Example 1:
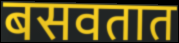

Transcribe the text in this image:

बसवतात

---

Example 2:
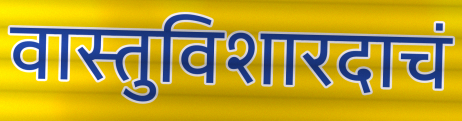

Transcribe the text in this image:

वास्तुविशारदाचं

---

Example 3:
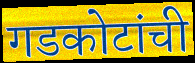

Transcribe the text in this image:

गडकोटांची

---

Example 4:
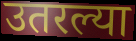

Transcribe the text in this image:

उतरल्या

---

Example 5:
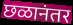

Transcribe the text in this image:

छळानंतर